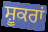
ਸ਼ੂਕਰਾਂ